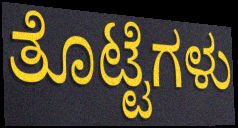
ತೊಟ್ಟೆಗಳು